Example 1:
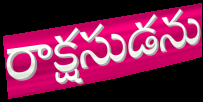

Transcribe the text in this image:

రాక్షసుడను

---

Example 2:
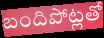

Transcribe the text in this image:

బందిపోట్లతో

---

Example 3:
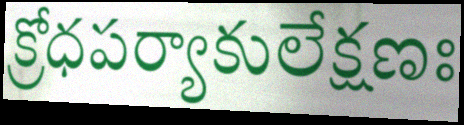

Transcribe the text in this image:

క్రోధపర్యాకులేక్షణః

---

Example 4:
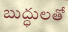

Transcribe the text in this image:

బుద్ధులతో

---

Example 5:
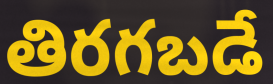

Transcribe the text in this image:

తిరగబడే